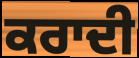
ਕਰਾਦੀ